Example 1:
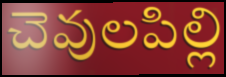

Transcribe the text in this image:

చెవులపిల్లి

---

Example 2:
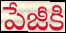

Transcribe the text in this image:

పేజీకి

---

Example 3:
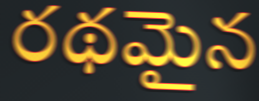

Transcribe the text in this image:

రథమైన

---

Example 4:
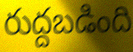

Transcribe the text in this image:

రుద్దబడింది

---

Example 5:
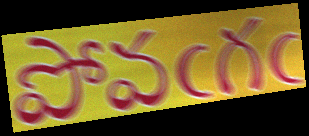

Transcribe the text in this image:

పోవఁగఁ